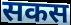
सकस